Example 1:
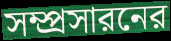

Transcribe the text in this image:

সম্প্রসারনের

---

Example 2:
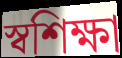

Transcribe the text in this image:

স্বশিক্ষা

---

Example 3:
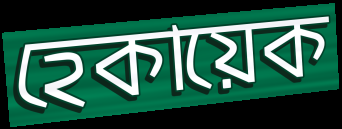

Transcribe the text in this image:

হেকায়েক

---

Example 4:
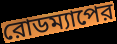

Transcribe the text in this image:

রোডম্যাপের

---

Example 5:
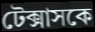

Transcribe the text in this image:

টেক্সাসকে